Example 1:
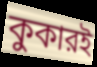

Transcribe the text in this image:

কুকারই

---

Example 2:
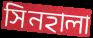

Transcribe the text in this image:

সিনহালা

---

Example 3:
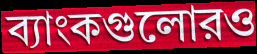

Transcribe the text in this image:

ব্যাংকগুলোরও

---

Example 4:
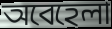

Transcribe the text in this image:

অবেহেলা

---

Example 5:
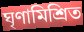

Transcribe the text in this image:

ঘৃণামিশ্রিত